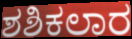
ಶಶಿಕಲಾರ